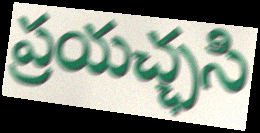
ప్రయచ్ఛసి